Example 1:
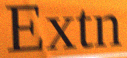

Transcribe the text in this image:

Extn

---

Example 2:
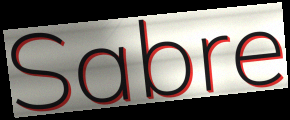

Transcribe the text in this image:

Sabre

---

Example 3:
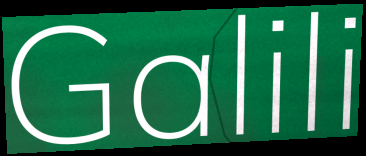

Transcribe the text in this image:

Galili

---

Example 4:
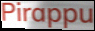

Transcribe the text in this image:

Pirappu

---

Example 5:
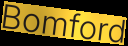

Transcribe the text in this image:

Bomford